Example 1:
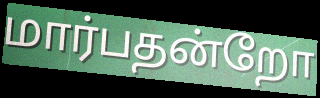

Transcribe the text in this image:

மார்பதன்றோ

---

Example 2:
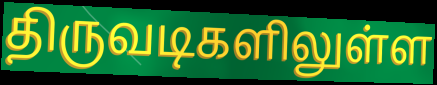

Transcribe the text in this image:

திருவடிகளிலுள்ள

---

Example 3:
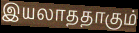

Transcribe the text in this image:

இயலாததாகும்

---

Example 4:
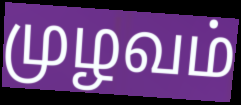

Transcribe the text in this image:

முழவம்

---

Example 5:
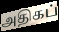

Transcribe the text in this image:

அதிகப்